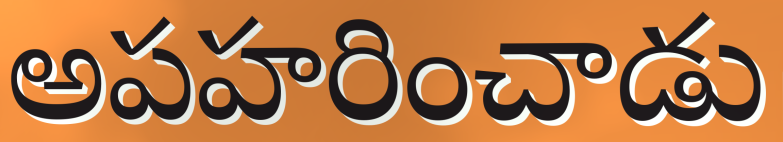
అపహరించాడు